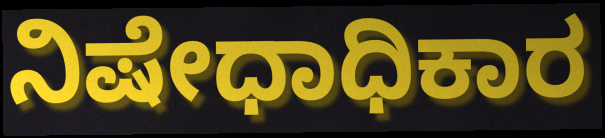
ನಿಷೇಧಾಧಿಕಾರ